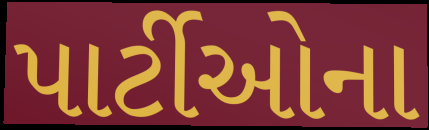
પાર્ટીઓના